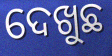
ଦେଖୁଛ